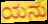
ಯನು